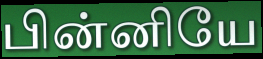
பின்னியே